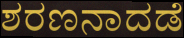
ಶರಣನಾದಡೆ